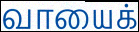
வாயைக்